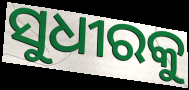
ସୁଧୀରକୁ